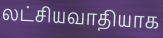
லட்சியவாதியாக